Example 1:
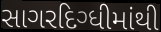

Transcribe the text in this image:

સાગરદિગ્ધીમાંથી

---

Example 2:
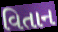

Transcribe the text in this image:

વિતાન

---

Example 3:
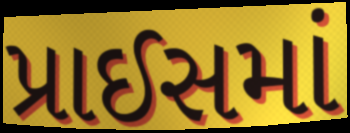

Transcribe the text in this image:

પ્રાઈસમાં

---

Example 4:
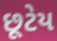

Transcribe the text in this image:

છૂટેય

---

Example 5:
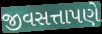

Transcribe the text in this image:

જીવસત્તાપણે